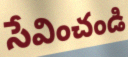
సేవించండి